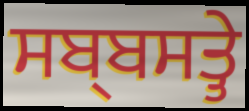
ਸਬ੍ਬਸਤ੍ਤੇ